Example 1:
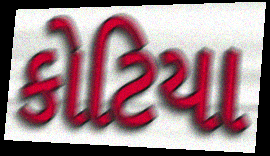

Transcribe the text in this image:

કોટિયા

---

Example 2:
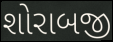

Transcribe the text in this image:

શોરાબજી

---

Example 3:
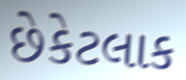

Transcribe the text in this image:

છેકેટલાક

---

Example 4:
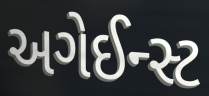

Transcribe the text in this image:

અગેઈન્સ્ટ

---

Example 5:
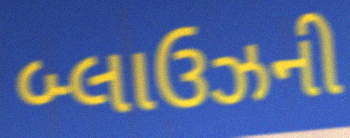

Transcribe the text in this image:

બ્લાઉઝની